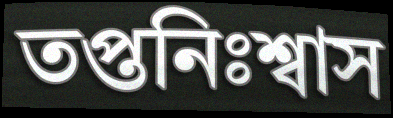
তপ্তনিঃশ্বাস